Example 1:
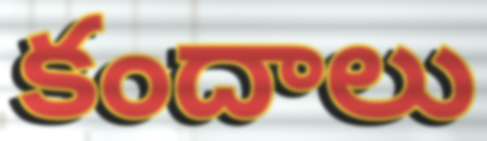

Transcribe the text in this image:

కందాలు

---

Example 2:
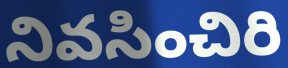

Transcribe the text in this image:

నివసించిరి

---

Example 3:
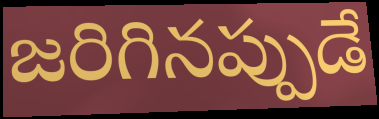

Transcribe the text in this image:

జరిగినప్పుడే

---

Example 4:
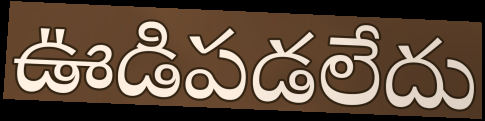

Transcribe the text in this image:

ఊడిపడలేదు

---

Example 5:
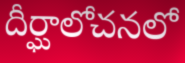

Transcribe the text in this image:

దీర్ఘాలోచనలో